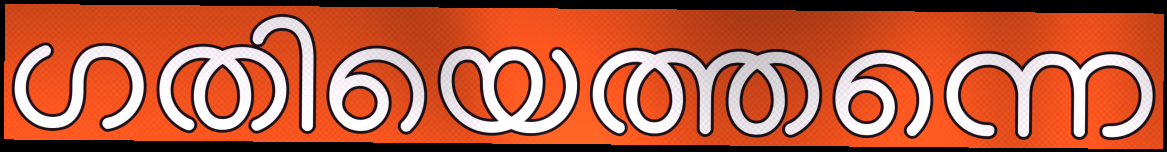
ഗതിയെത്തന്നെ